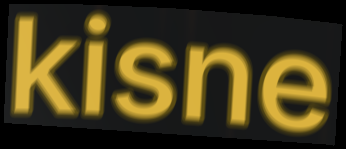
kisne